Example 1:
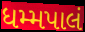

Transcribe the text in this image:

ધમ્મપાલં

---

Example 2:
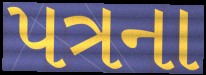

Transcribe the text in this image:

પત્રના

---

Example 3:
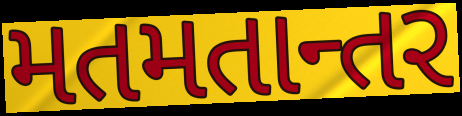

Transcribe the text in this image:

મતમતાન્તર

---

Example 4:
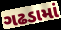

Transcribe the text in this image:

ગઢડામાં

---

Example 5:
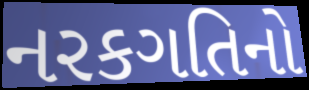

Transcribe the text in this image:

નરકગતિનો